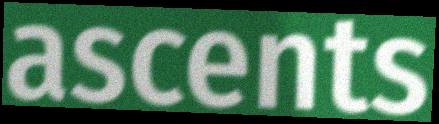
ascents